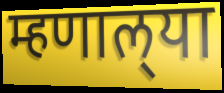
म्हणाल्या